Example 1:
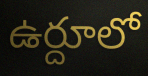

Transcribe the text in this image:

ఉర్దూలో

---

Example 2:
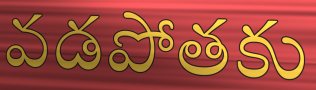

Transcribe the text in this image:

వడపోతకు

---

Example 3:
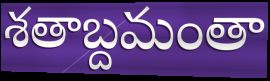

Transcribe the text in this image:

శతాబ్దమంతా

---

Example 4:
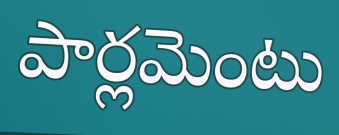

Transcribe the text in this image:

పార్లమెంటు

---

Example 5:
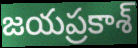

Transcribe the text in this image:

జయప్రకాశ్